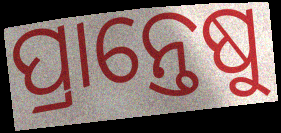
ପ୍ରାନ୍ତେଷୁ